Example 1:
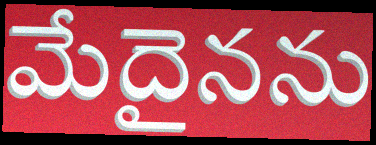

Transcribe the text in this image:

మేదైనను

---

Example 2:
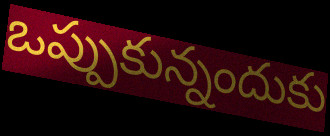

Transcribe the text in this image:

ఒప్పుకున్నందుకు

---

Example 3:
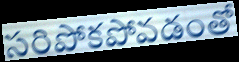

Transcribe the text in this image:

సరిపోకపోవడంతో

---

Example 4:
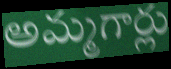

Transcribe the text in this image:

అమ్మగార్లు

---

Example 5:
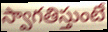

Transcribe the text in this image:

స్వాగతిస్తుంటే